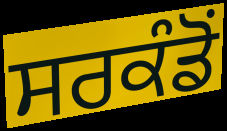
ਸਰਕੰਡੋਂ